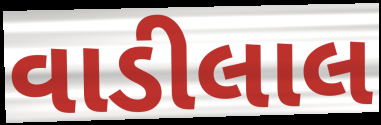
વાડીલાલ